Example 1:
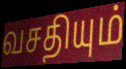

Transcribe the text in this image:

வசதியும்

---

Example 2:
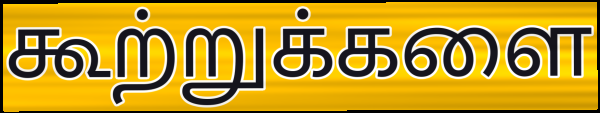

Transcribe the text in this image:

கூற்றுக்களை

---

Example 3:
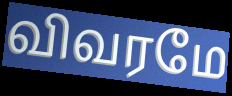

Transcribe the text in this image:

விவரமே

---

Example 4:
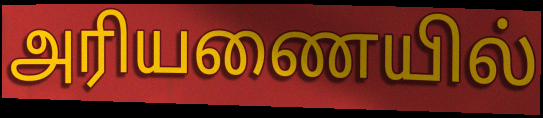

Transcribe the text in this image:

அரியணையில்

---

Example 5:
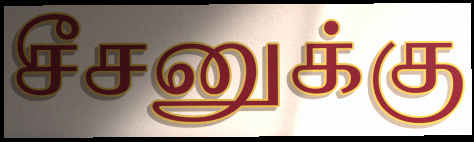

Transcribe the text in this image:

சீசனுக்கு